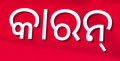
କାରନ୍